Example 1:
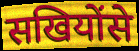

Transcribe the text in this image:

सखियोंसे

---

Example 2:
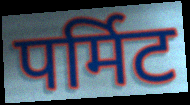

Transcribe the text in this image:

पर्मिट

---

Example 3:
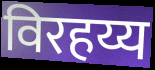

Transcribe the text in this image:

विरहय्य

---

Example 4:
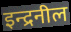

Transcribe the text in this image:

इन्द्रनील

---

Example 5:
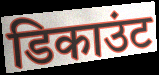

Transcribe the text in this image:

डिकाउंट